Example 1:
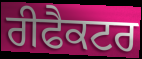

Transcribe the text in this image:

ਰੀਫੈਕਟਰ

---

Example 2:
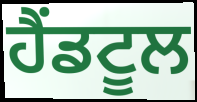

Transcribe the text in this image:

ਹੈਂਡਟੂਲ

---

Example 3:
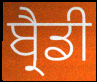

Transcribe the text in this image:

ਬ੍ਰੈਡੀ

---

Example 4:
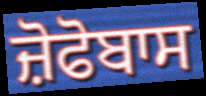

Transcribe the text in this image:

ਜ਼ੋਫੋਬਾਸ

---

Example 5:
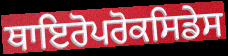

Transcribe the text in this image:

ਥਾਇਰੋਪਰੋਕਸਿਡੇਸ